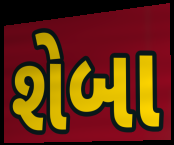
શેબા